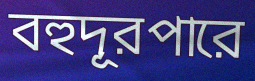
বহুদূরপারে